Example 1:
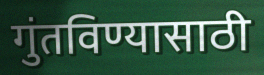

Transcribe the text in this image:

गुंतविण्यासाठी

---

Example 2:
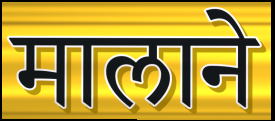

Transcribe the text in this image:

मालाने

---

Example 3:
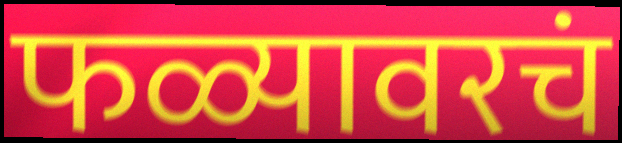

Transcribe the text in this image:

फळ्यावरचं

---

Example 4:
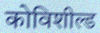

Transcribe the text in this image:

कोविशील्ड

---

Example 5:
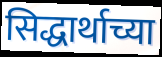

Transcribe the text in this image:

सिद्धार्थाच्या